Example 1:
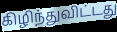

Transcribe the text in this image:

கிழிந்துவிட்டது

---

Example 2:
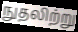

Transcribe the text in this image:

நுதலிற்று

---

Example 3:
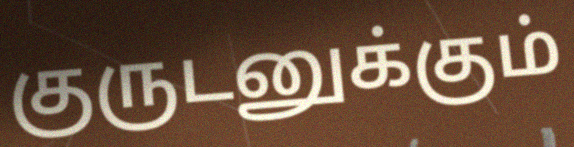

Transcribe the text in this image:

குருடனுக்கும்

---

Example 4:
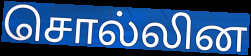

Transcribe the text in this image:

சொல்லின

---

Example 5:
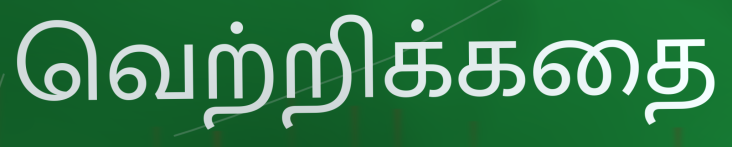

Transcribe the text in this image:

வெற்றிக்கதை